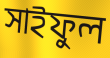
সাইফুল